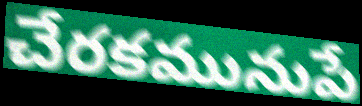
చేరకమునుపే